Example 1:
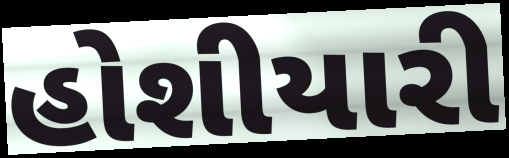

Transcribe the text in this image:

હોશીયારી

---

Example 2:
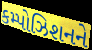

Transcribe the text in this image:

કમ્પોઝિશનને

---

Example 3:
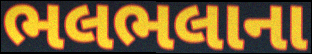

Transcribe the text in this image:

ભલભલાના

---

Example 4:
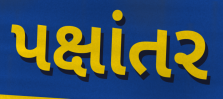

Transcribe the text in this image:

પક્ષાંતર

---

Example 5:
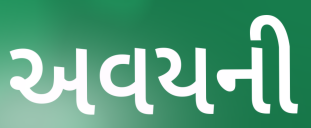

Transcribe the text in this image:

અવયની